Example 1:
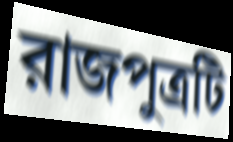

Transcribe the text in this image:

রাজপুত্রটি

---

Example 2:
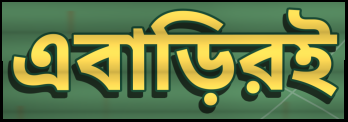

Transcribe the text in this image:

এবাড়িরই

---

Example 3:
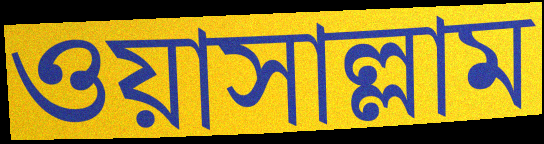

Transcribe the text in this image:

ওয়াসাল্লাম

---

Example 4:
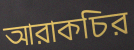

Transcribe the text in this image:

আরাকচির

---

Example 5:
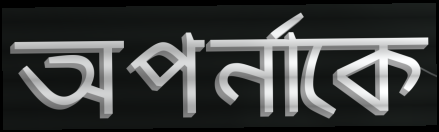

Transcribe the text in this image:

অপর্নাকে